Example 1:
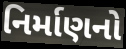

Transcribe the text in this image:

નિર્માણનો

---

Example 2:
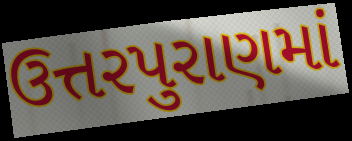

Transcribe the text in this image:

ઉત્તરપુરાણમાં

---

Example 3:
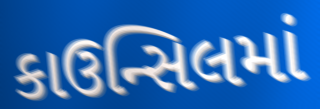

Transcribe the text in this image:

કાઉન્સિલમાં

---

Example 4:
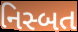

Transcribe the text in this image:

નિસ્બત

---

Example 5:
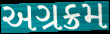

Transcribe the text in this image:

અગ્રક્રમ